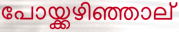
പോയ്ക്കഴിഞ്ഞാല്